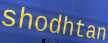
shodhtan